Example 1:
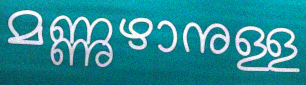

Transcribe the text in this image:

മണ്ണുഴാനുള്ള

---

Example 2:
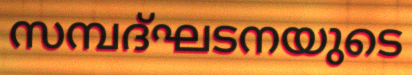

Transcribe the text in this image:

സമ്പദ്ഘടനയുടെ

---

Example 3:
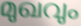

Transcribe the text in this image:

മുഖവും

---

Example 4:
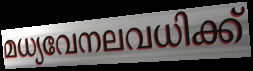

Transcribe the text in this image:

മധ്യവേനലവധിക്ക്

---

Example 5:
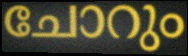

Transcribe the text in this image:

ചോറും